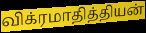
விக்ரமாதித்தியன்